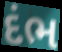
દંભ